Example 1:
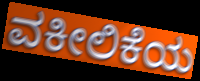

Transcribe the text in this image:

ವಕೀಲಿಕೆಯ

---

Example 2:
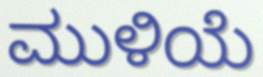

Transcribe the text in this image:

ಮುಳಿಯೆ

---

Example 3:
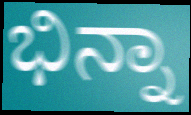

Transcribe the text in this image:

ಭಿನ್ನಾ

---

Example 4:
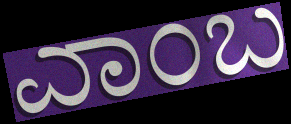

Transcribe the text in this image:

ಎಾಂಬ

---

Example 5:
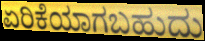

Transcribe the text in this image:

ಏರಿಕೆಯಾಗಬಹುದು